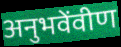
अनुभवेंवीण